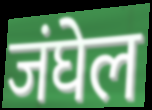
जंघेल